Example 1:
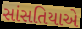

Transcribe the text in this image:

સાંસતિયાએ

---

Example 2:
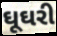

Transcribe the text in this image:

ઘૂઘરી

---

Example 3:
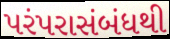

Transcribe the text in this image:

પરંપરાસંબંધથી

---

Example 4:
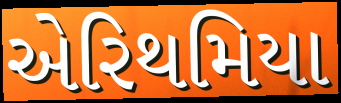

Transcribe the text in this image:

એરિથમિયા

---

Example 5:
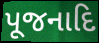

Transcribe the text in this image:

પૂજનાદિ